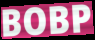
BOBP